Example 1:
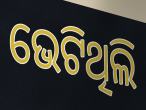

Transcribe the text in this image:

ଭେଟିଥିଲି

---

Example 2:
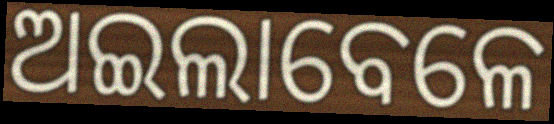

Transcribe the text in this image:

ଅଇଲାବେଳେ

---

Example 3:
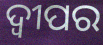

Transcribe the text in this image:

ଦ୍ଵୀପର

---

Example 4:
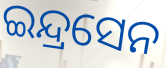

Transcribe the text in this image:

ଇନ୍ଦ୍ରସେନ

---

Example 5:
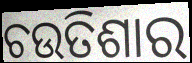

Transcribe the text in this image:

ଚଉତିଶାର